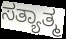
ಸತ್ಯಾತ್ಮ